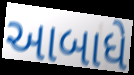
આબાધે